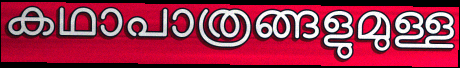
കഥാപാത്രങ്ങളുമുള്ള